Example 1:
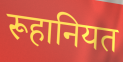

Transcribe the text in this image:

रूहानियत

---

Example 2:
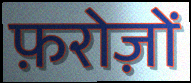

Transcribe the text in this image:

फ़रोज़ों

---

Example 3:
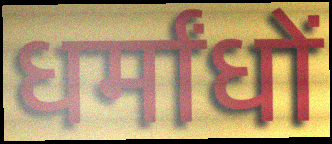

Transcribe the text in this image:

धर्मांधों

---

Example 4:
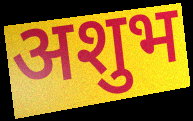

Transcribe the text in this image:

अशुभ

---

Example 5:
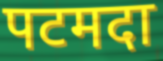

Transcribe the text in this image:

पटमदा